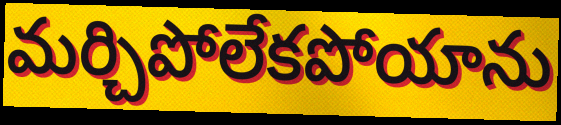
మర్చిపోలేకపోయాను